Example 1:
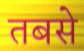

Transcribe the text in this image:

तबसे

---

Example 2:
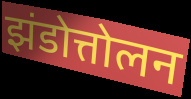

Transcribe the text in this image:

झंडोत्तोलन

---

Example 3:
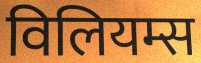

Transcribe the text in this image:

विलियम्स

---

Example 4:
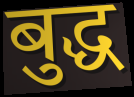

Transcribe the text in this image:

बुद्ध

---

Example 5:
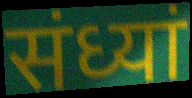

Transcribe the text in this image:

संध्यां